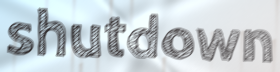
shutdown